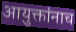
आयुक्तांनाच